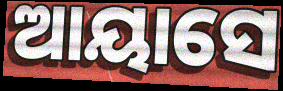
ଆୟାସେ